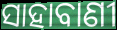
ସାହାବାଣୀ